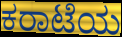
ಕರಾಟೆಯ